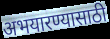
अभयारण्यासाठी